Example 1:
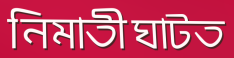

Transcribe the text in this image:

নিমাতীঘাটত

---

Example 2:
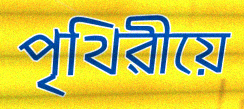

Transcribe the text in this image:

পৃথিৱীয়ে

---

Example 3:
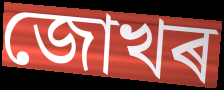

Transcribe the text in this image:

জোখৰ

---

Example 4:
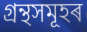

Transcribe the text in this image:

গ্ৰন্থসমূহৰ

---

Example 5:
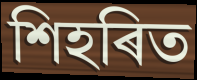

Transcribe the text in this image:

শিহৰিত